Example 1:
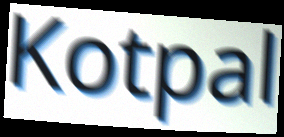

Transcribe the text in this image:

Kotpal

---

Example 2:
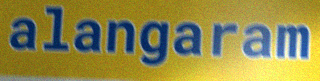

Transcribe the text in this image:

alangaram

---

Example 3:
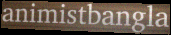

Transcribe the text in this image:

animistbangla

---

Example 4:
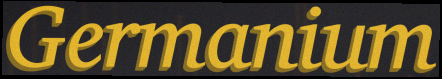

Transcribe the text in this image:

Germanium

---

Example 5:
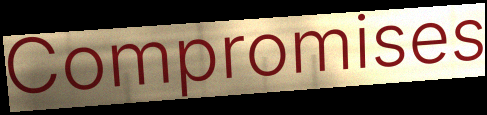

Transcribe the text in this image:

Compromises